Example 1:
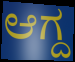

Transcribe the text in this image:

ಆಗ್ದ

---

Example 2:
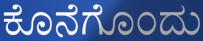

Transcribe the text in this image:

ಕೊನೆಗೊಂದು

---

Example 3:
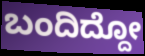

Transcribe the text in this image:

ಬಂದಿದ್ದೋ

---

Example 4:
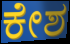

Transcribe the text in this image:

ಕೇಶ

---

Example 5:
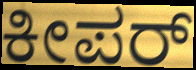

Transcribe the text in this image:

ಕೀಪರ್